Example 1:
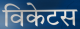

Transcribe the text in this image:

विकेटस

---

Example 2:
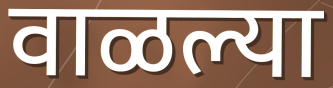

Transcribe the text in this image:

वाळल्या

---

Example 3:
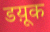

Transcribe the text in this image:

डय़ूक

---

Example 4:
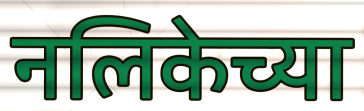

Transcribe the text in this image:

नलिकेच्या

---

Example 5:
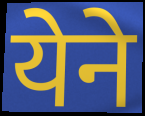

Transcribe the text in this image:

येने